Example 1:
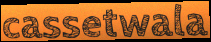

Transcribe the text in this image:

cassetwala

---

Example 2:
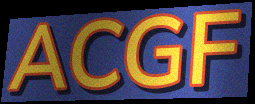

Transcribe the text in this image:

ACGF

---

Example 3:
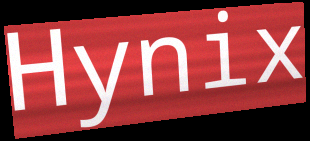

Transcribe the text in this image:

Hynix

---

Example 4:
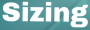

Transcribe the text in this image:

Sizing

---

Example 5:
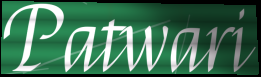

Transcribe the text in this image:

Patwari